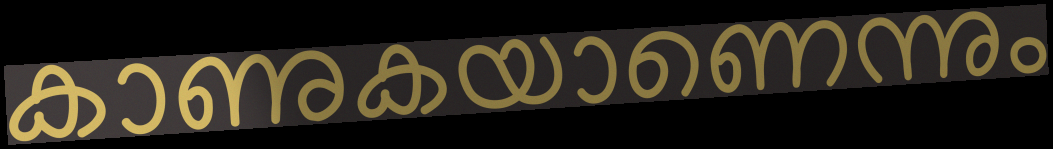
കാണുകയാണെന്നും